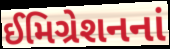
ઈમિગ્રેશનનાં